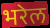
भरेल